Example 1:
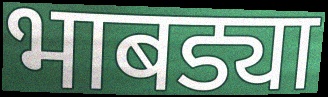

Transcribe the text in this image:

भाबड्या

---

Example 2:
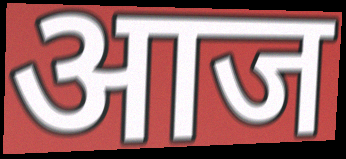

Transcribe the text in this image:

आज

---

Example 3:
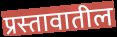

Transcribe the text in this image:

प्रस्तावातील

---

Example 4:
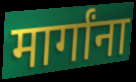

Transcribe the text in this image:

मार्गांना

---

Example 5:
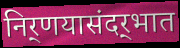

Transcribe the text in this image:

निर्णयासंदर्भात